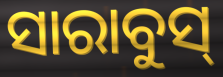
ସାରାବୁସ୍